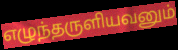
எழுந்தருளியவனும்